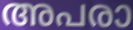
അപരാ